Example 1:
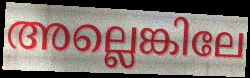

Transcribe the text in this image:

അല്ലെങ്കിലേ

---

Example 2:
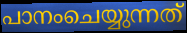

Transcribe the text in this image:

പാനംചെയ്യുന്നത്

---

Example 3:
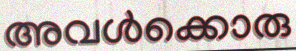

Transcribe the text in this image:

അവൾക്കൊരു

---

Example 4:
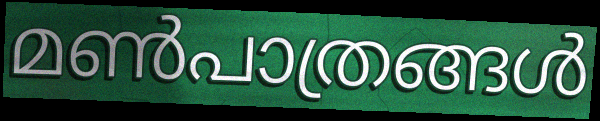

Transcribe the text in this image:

മൺപാത്രങ്ങൾ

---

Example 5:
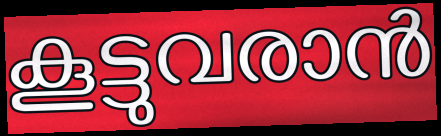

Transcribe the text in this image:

കൂട്ടുവരാൻ